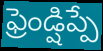
ఫ్రెండ్షిప్పే